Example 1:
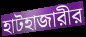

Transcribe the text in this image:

হাটহাজারীর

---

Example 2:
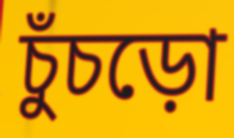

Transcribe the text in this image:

চুঁচড়ো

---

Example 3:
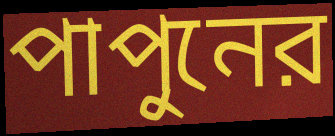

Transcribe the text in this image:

পাপুনের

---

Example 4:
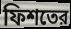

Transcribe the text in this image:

ফিশতের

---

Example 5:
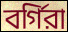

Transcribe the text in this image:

বর্গিরা